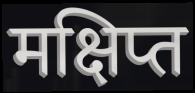
मक्षिप्त